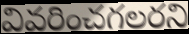
వివరించగలరని